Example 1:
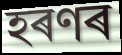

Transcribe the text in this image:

হৰণৰ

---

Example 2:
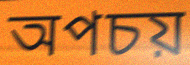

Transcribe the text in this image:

অপচয়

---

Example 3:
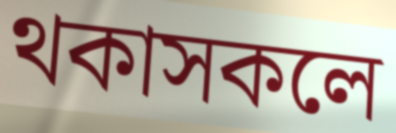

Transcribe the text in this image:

থকাসকলে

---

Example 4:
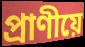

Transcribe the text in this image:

প্ৰাণীয়ে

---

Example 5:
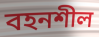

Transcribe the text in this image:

বহনশীল